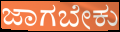
ಜಾಗಬೇಕು